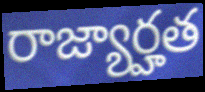
రాజ్యార్హత